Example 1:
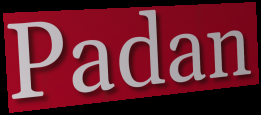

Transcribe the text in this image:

Padan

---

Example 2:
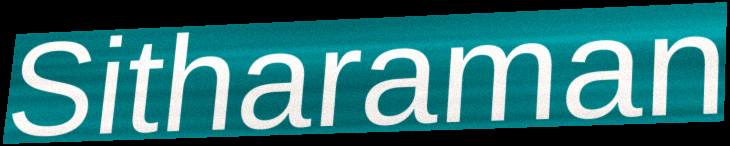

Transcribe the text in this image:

Sitharaman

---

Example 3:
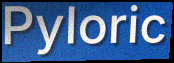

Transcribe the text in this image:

Pyloric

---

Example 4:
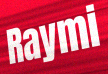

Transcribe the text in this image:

Raymi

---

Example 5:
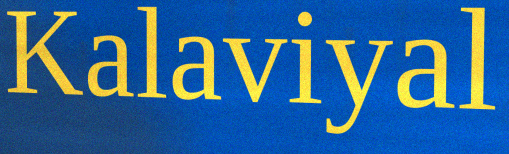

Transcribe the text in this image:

Kalaviyal